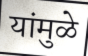
यांमुळे